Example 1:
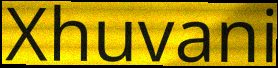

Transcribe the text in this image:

Xhuvani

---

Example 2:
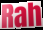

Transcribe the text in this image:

Rah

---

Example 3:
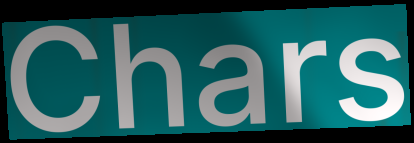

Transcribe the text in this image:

Chars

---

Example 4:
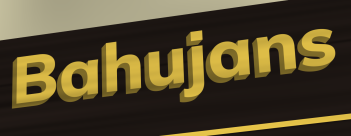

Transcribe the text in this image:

Bahujans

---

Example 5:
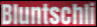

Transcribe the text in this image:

Bluntschli